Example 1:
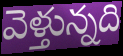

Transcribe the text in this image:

వెళ్తున్నది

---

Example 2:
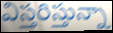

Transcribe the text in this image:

విస్తరిస్తున్నా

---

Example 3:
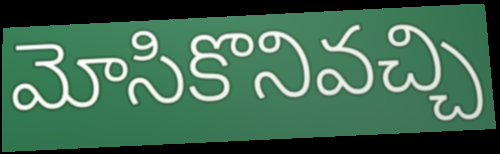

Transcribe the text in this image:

మోసికొనివచ్చి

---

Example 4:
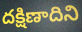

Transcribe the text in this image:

దక్షిణాదిని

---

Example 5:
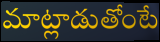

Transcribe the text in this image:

మాట్లాడుతోంటే